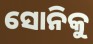
ସୋନିକୁ